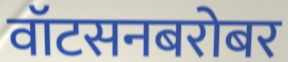
वॉटसनबरोबर